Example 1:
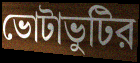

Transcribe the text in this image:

ভোটাভুটির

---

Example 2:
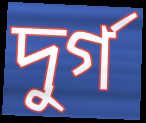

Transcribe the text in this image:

দুর্গ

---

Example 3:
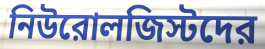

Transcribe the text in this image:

নিউরোলজিস্টদের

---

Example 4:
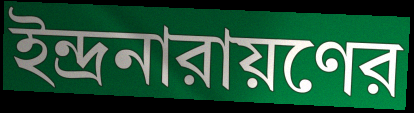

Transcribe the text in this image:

ইন্দ্রনারায়ণের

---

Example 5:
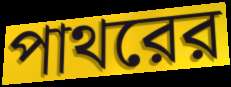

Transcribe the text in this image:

পাথরের